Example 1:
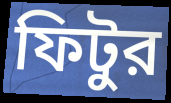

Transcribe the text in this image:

ফিটুর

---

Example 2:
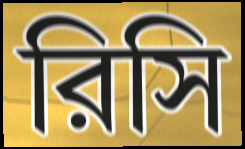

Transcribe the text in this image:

রিসি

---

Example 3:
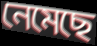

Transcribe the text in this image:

নেমেছে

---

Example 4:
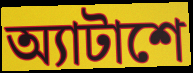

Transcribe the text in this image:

অ্যাটাশে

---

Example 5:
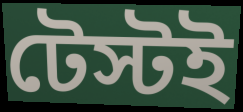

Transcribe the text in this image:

টেস্টই